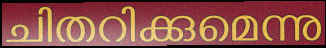
ചിതറിക്കുമെന്നു